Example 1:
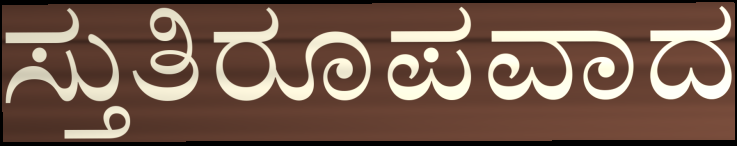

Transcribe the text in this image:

ಸ್ತುತಿರೂಪವಾದ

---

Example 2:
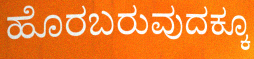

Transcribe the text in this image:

ಹೊರಬರುವುದಕ್ಕೂ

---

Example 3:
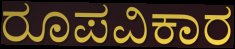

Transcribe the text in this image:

ರೂಪವಿಕಾರ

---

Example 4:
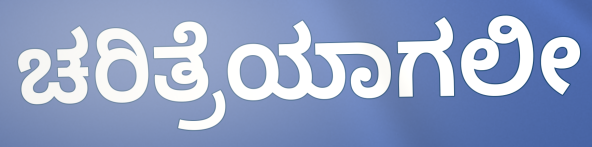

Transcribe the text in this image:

ಚರಿತ್ರೆಯಾಗಲೀ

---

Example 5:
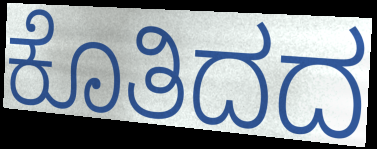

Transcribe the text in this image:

ಕೊತಿದದ